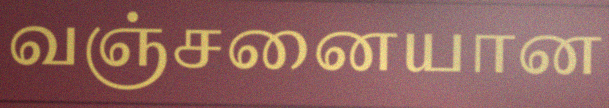
வஞ்சனையான